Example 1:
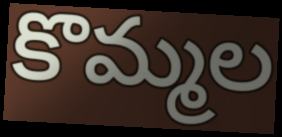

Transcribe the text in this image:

కొమ్మల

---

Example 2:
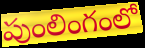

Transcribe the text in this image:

పుంలింగంలో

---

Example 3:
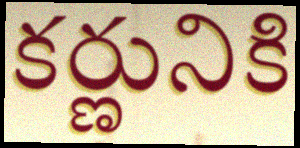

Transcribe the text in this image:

కర్ణునికి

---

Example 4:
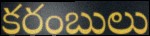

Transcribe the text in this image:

కరంబులు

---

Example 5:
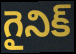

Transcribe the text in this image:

గైనిక్